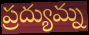
ప్రద్యుమ్న